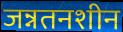
जन्नतनशीन